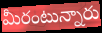
మీరంటున్నారు